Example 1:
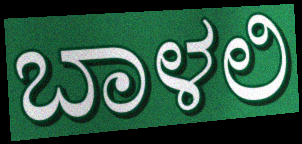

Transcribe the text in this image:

ಬಾಳಲಿ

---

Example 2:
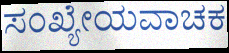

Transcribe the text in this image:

ಸಂಖ್ಯೇಯವಾಚಕ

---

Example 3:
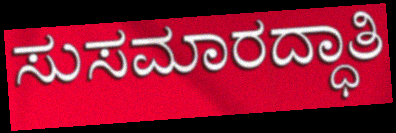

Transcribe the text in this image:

ಸುಸಮಾರದ್ಧಾತಿ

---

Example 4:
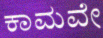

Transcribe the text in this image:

ಕಾಮವೇ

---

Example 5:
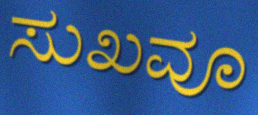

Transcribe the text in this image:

ಸುಖವೂ